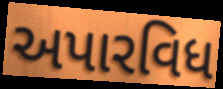
અપારવિધ